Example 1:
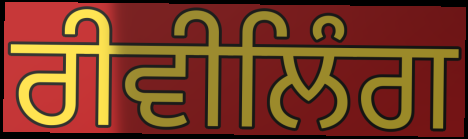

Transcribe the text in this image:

ਰੀਵੀਲਿੰਗ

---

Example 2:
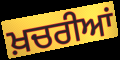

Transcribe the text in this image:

ਖ਼ਚਰੀਆਂ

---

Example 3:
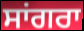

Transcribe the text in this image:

ਸਾਂਗਰਾ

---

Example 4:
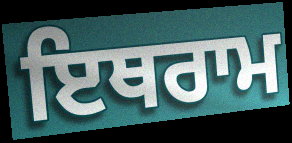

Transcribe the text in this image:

ਇਥਰਾਮ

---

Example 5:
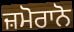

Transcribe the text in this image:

ਜ਼ਮੋਰਾਨੋ